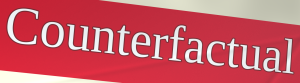
Counterfactual